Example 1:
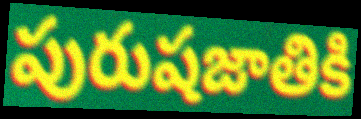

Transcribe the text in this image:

పురుషజాతికి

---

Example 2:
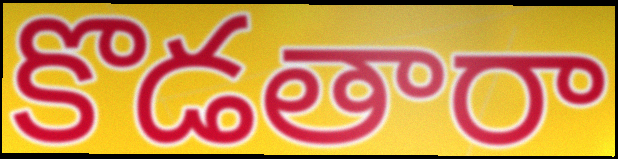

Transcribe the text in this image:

కొడతారా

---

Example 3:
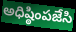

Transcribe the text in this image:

అధిష్ఠింపజేసి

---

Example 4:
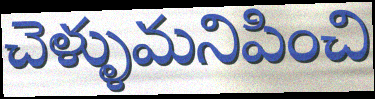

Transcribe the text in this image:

చెళ్ళుమనిపించి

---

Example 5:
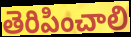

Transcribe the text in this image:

తెరిపించాలి